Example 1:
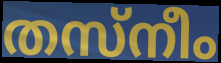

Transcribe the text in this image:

തസ്നീം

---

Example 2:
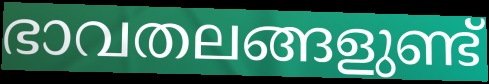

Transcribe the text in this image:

ഭാവതലങ്ങളുണ്ട്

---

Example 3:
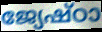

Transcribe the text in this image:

ജ്യേഷ്ഠാ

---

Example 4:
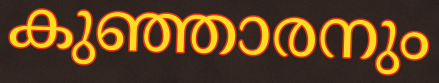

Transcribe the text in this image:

കുഞ്ഞാരനും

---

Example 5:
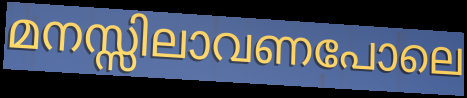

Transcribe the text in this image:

മനസ്സിലാവണപോലെ